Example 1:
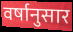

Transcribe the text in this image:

वर्षानुसार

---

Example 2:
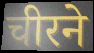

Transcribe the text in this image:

चीरने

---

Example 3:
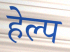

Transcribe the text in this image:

हेल्प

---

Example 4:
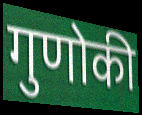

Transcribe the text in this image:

गुणोकी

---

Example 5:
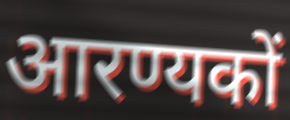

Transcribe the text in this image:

आरण्यकों